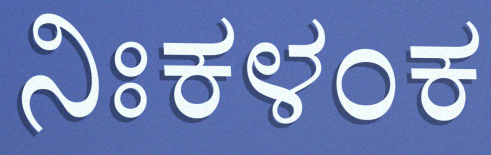
ನಿಃಕಳಂಕ